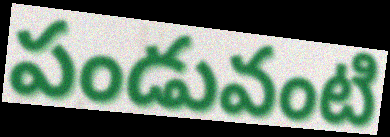
పండువంటి